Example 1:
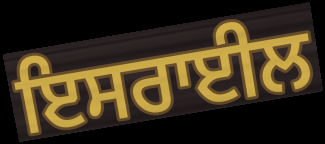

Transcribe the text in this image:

ਇਸਰਾਈਲ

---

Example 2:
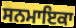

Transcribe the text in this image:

ਸਨਮਾਇਕਾ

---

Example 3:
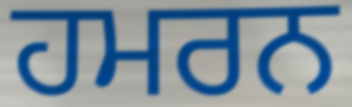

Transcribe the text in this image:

ਹਮਰਨ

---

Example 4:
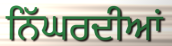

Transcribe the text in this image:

ਨਿੱਘਰਦੀਆਂ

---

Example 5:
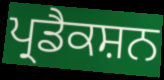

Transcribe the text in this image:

ਪ੍ਰਡੈਕਸ਼ਨ